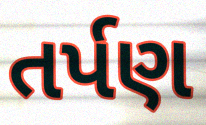
તર્પણ